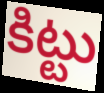
కిట్టు